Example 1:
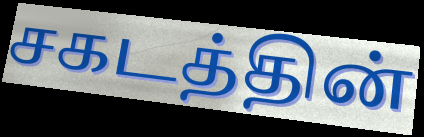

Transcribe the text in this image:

சகடத்தின்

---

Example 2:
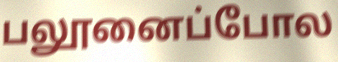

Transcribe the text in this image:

பலூனைப்போல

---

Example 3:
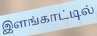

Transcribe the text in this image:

இளங்காட்டில்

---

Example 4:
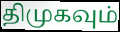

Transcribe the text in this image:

திமுகவும்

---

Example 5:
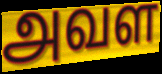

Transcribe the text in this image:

அவள